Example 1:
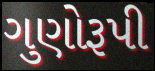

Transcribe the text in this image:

ગુણોરૂપી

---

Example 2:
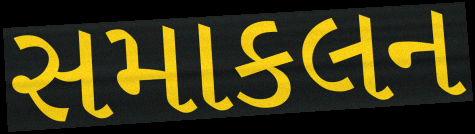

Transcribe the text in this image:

સમાકલન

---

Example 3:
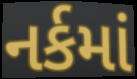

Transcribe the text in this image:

નર્કમાં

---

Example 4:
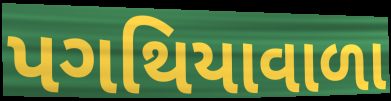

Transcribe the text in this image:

પગથિયાવાળા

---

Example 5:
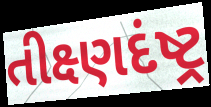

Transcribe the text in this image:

તીક્ષ્ણદંષ્ટ્ર